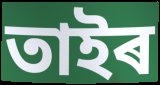
তাইৰ